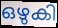
ഒഴുകി